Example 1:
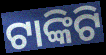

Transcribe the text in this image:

ଟାଙ୍କିଟି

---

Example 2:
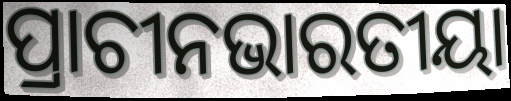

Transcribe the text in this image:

ପ୍ରାଚୀନଭାରତୀୟା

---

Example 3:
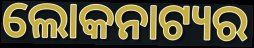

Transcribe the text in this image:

ଲୋକନାଟ୍ୟର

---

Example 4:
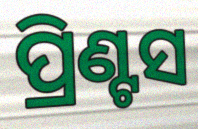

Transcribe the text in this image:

ପ୍ରିଣ୍ଟସ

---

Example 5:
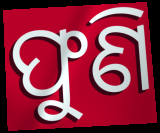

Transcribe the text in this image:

ଫୁଣି